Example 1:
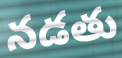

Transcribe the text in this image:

నడతు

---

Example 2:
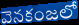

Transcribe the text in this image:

వెనకంజలో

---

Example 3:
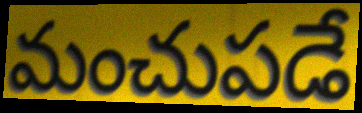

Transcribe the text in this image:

మంచుపడే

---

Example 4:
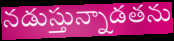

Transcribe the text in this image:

నడుస్తున్నాడతను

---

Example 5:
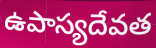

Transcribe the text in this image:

ఉపాస్యదేవత